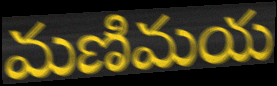
మణిమయ